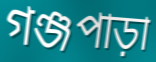
গঞ্জপাড়া